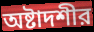
অষ্টাদশীর